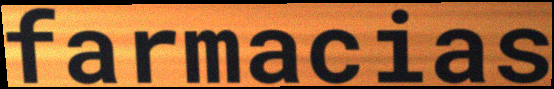
farmacias